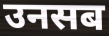
उनसब